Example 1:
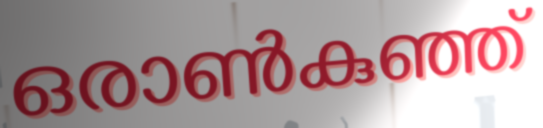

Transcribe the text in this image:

ഒരാൺകുഞ്ഞ്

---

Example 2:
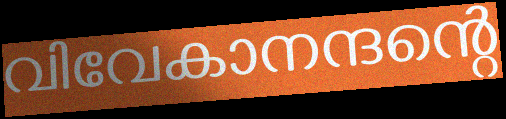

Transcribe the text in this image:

വിവേകാനന്ദന്റെ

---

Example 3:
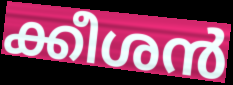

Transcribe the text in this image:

ക്കീശൻ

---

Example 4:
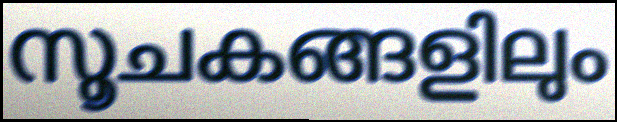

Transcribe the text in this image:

സൂചകങ്ങളിലും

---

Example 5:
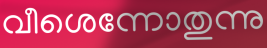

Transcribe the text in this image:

വീശെന്നോതുന്നു